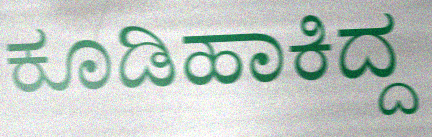
ಕೂಡಿಹಾಕಿದ್ದ